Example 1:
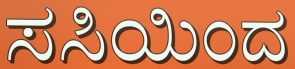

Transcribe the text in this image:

ಸಸಿಯಿಂದ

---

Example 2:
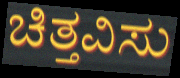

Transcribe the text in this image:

ಚಿತ್ತವಿಸು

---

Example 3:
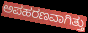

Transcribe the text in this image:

ಅಪಹರಣವಾಗಿತ್ತು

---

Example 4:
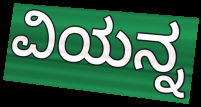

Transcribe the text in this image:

ವಿಯನ್ನ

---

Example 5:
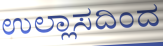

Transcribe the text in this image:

ಉಲ್ಲಾಸದಿಂದ